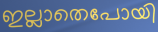
ഇല്ലാതെപോയി